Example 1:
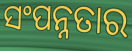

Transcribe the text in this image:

ସଂପନ୍ନତାର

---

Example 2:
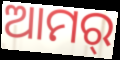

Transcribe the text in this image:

ଆମର୍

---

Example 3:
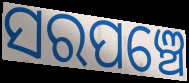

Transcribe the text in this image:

ସରପଞ୍ଚେ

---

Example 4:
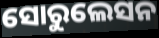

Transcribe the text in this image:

ସୋରୁଲେସନ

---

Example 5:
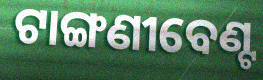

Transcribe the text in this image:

ଟାଙ୍ଗଣୀବେଣ୍ଟ